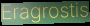
Eragrostis